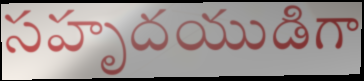
సహృదయుడిగా